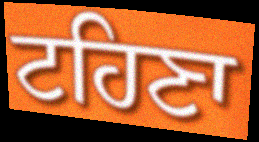
ਟਹਿਣਾ